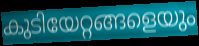
കുടിയേറ്റങ്ങളെയും